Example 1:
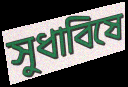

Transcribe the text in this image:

সুধাবিষে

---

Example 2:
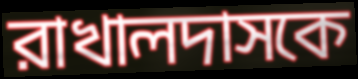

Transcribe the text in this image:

রাখালদাসকে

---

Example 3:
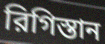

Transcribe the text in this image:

রিগিস্তান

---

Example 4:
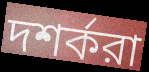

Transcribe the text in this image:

দশর্করা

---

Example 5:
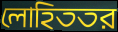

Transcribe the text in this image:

লোহিততর